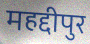
महद्दीपुर